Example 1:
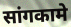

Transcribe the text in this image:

सांगकामे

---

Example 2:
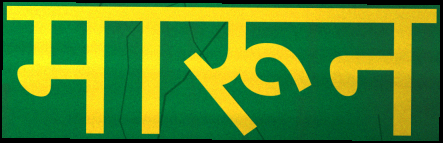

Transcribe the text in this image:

मारून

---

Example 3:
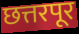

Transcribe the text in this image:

छत्तरपूर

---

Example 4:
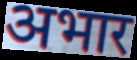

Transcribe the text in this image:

अभार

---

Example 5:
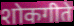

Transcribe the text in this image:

शोकगीते